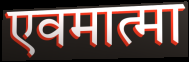
एवमात्मा